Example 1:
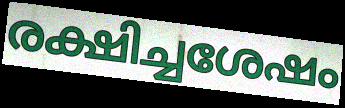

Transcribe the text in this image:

രക്ഷിച്ചശേഷം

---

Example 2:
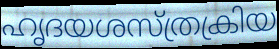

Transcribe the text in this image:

ഹൃദയശസ്ത്രക്രിയ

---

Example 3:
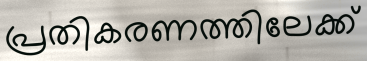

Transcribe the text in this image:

പ്രതികരണത്തിലേക്ക്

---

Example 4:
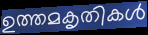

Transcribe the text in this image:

ഉത്തമകൃതികൾ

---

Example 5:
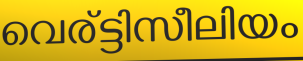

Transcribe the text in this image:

വെര്ട്ടിസീലിയം